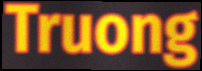
Truong